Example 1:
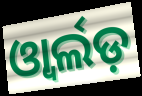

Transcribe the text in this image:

ଓ୍ୱାର୍ଲଡ଼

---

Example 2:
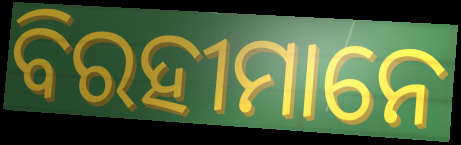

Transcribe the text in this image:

ବିରହୀମାନେ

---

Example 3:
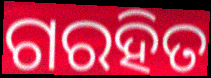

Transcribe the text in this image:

ଗରହିତ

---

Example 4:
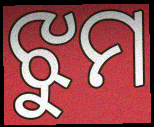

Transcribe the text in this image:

ଝୁମ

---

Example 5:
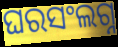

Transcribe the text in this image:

ଘରସଂଲଗ୍ନ